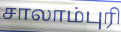
சாலாம்புரி